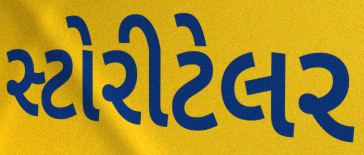
સ્ટોરીટેલર